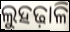
ଲୁହଢ଼ାଳି